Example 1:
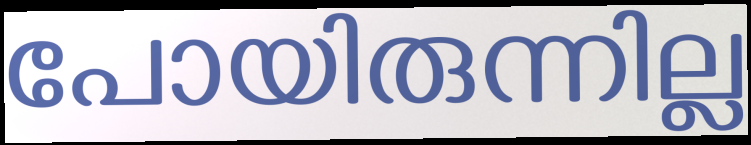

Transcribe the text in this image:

പോയിരുന്നില്ല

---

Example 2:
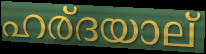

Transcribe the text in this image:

ഹര്ദയാല്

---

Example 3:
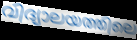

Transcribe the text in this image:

വിദ്യാലയത്തിലെ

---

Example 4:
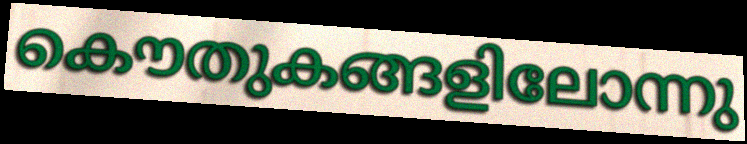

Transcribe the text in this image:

കൌതുകങ്ങളിലോന്നു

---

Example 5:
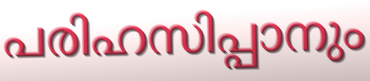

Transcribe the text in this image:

പരിഹസിപ്പാനും